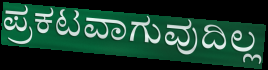
ಪ್ರಕಟವಾಗುವುದಿಲ್ಲ